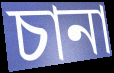
চানা